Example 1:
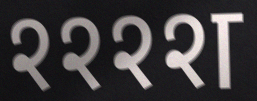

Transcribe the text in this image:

श्श्श्श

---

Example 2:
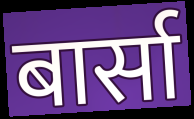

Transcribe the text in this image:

बार्सा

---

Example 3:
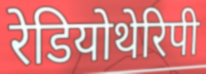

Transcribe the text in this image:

रेडियोथेरिपी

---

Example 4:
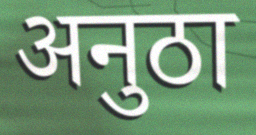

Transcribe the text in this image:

अनुठा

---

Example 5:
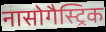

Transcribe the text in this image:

नासोगैस्ट्रिक